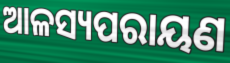
ଆଳସ୍ୟପରାୟଣ